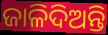
ଜାଳିଦିଅନ୍ତି